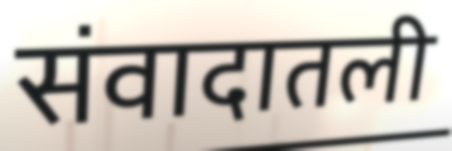
संवादातली